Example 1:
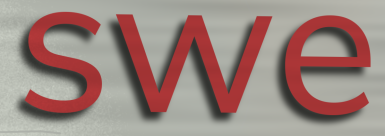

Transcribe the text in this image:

swe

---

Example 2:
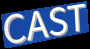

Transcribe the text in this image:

CAST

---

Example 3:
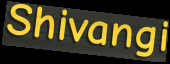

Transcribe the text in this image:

Shivangi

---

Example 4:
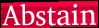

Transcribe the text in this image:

Abstain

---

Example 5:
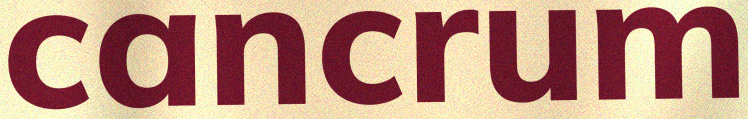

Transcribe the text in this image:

cancrum